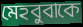
মেহবুবাকে